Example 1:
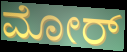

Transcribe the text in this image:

ಮೋರ್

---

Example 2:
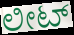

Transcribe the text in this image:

ಲೀಟ್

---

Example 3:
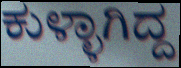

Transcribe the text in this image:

ಕುಳ್ಳಾಗಿದ್ದ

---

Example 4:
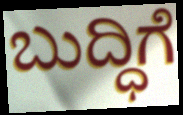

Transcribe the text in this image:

ಬುದ್ಧಿಗೆ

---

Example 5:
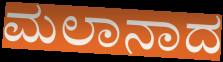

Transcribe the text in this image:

ಮಲಾನಾದ